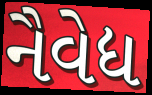
નૈવેદ્ય